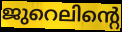
ജുറെലിന്റെ